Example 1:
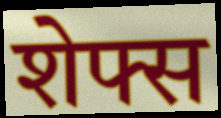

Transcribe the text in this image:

शेफ्स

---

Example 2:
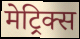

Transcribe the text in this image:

मेट्रिक्स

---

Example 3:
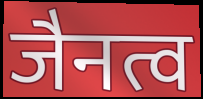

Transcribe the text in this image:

जैनत्व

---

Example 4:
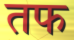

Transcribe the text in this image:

तफ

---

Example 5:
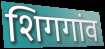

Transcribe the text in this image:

शिगगांव